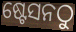
ଷ୍ଟେସନଠୁ